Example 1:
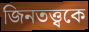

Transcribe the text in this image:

জিনতত্ত্বকে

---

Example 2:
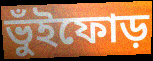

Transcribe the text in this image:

ভুঁইফোড়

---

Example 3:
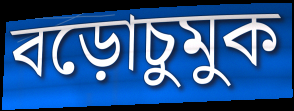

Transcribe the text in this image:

বড়োচুমুক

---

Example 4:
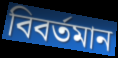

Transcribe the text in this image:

বিবর্তমান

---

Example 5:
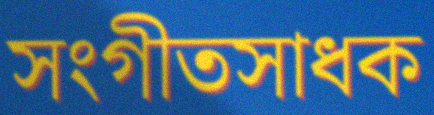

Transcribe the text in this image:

সংগীতসাধক